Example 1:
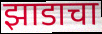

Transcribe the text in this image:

झाडाचा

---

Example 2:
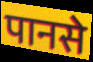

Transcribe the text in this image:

पानसे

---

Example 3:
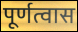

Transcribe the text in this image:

पूर्णत्वास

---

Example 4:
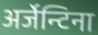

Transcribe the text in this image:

अर्जेन्टिना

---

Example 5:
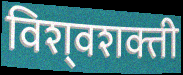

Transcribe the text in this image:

विश्वशक्ती